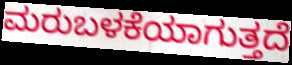
ಮರುಬಳಕೆಯಾಗುತ್ತದೆ